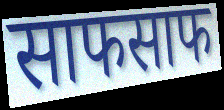
साफसाफ